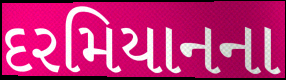
દરમિયાનના